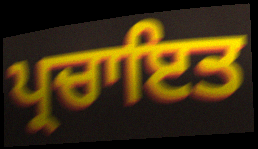
ਪ੍ਰਚਾਇਤ